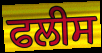
ਫਲੀਸ